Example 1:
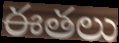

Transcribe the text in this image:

ఈతలు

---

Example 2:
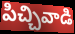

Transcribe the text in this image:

పిచ్చివాడి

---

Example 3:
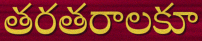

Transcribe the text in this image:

తరతరాలకూ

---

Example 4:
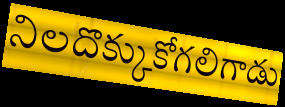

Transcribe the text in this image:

నిలదొక్కుకోగలిగాడు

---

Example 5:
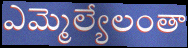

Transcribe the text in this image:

ఎమ్మెల్యేలంతా